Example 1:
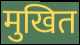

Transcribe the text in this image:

मुखित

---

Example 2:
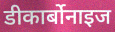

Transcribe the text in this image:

डीकार्बोनाइज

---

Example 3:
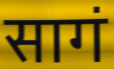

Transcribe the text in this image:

सागं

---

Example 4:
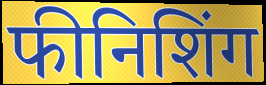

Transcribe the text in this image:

फीनिशिंग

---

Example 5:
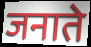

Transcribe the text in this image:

जनाते